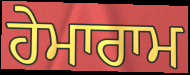
ਹੇਮਾਰਾਮ